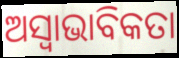
ଅସ୍ୱାଭାବିକତା